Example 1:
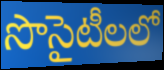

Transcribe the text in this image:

సొసైటీలలో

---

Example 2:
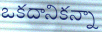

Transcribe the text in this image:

ఒకదానికన్నా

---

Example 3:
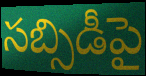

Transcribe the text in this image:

సబ్సిడీపై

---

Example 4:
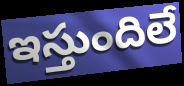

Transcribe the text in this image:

ఇస్తుందిలే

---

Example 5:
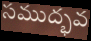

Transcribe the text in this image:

సముద్భవ